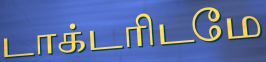
டாக்டரிடமே